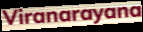
Viranarayana